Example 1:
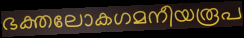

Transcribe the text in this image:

ഭക്തലോകഗമനീയരൂപ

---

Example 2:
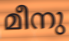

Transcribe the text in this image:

മീനു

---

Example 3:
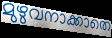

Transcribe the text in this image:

മുഴുവനാക്കാതെ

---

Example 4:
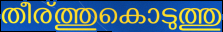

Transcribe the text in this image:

തീര്ത്തുകൊടുത്തു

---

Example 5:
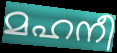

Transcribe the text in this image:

മഹനീ